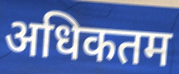
अधिकतम